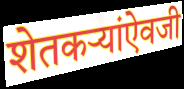
शेतकऱ्यांऐवजी